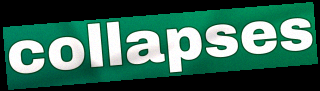
collapses